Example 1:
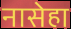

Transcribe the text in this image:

नासेहा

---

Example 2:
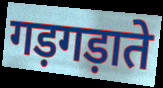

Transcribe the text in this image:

गड़गड़ाते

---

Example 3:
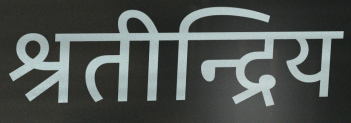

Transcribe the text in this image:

श्रतीन्द्रिय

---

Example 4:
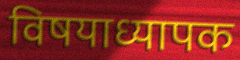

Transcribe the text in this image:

विषयाध्यापक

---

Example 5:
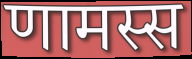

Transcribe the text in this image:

णामस्स